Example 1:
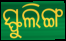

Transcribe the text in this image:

ସ୍ଫୁଲିଙ୍ଗ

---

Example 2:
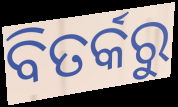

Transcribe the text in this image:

ବିତର୍କରୁ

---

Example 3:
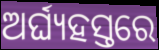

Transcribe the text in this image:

ଅର୍ଘ୍ୟହସ୍ତରେ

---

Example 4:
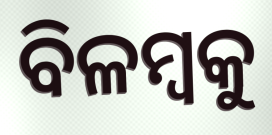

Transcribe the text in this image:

ବିଳମ୍ୱକୁ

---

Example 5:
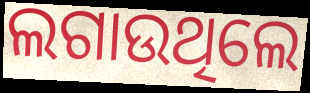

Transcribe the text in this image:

ଲଗାଉଥିଲେ